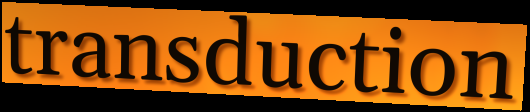
transduction